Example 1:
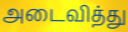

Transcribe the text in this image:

அடைவித்து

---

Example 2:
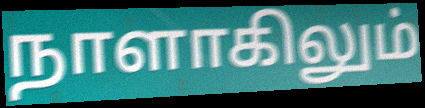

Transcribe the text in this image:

நாளாகிலும்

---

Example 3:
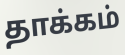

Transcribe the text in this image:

தாக்கம்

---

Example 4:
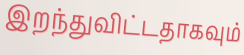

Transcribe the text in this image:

இறந்துவிட்டதாகவும்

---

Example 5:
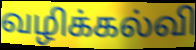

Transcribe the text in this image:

வழிக்கல்வி